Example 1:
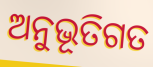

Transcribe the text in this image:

ଅନୁଭୂତିଗତ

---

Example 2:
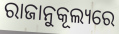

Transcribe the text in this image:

ରାଜାନୁକୂଲ୍ୟରେ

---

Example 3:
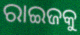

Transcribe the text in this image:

ରାଇଜକୁ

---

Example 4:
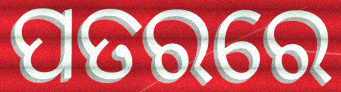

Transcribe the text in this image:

ପତରରେ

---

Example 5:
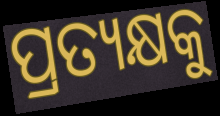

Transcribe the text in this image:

ପ୍ରତ୍ୟକ୍ଷକୁ